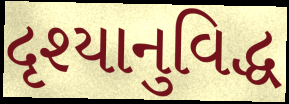
દૃશ્યાનુવિદ્ધ